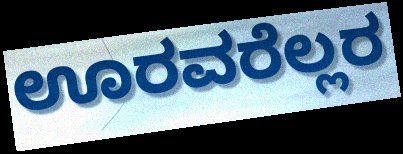
ಊರವರೆಲ್ಲರ